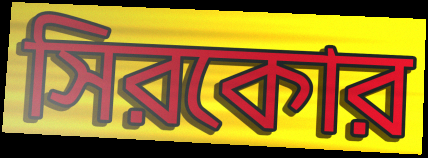
সিরকোর